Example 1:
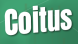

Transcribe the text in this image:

Coitus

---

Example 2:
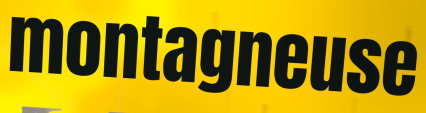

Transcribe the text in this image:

montagneuse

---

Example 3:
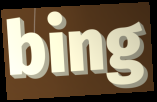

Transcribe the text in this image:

bing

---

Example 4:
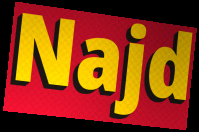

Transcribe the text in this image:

Najd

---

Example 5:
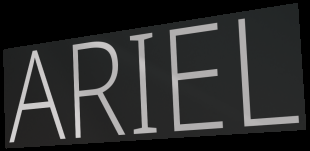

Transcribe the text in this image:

ARIEL